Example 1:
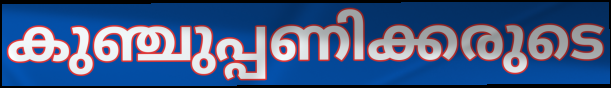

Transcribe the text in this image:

കുഞ്ചുപ്പണിക്കരുടെ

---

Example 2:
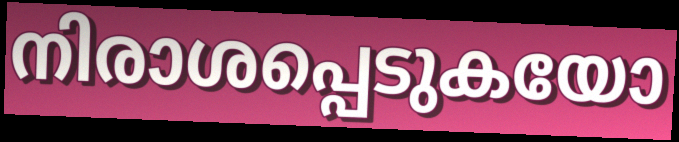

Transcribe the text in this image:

നിരാശപ്പെടുകയോ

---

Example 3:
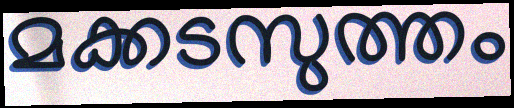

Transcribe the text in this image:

മക്കടസുത്തം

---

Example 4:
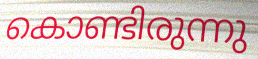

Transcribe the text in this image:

കൊണ്ടിരുന്നു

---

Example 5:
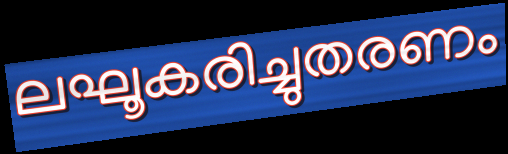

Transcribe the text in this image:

ലഘൂകരിച്ചുതരണം